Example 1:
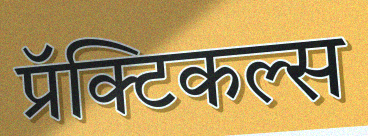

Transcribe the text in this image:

प्रॅक्टिकल्स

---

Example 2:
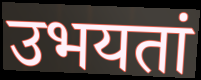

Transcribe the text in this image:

उभयतां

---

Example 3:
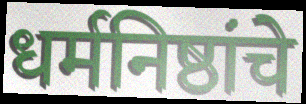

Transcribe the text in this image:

धर्मनिष्ठांचे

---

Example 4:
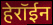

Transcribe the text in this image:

हेरॉईन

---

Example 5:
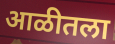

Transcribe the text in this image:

आळीतला